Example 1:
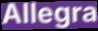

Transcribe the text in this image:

Allegra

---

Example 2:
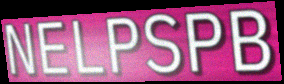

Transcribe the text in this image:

NELPSPB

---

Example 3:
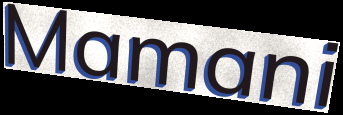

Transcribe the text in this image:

Mamani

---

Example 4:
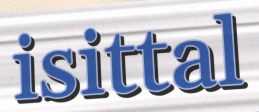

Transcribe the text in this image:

isittal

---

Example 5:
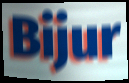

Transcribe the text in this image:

Bijur